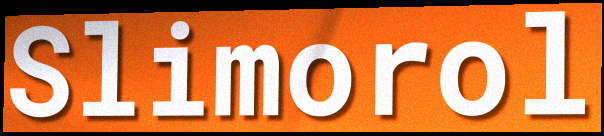
Slimorol